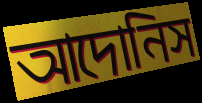
আদোনিস